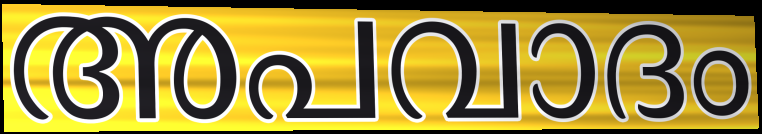
അപവാദം